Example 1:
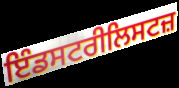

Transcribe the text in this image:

ਇੰਡਸਟਰੀਲਿਸਟਜ਼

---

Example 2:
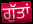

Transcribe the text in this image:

ਗੁੱਤਾਂ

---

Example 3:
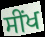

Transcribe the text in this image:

ਸੀਂਖ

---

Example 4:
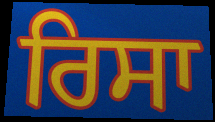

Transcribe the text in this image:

ਰਿਸਾ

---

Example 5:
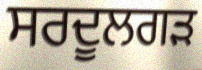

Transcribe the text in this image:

ਸਰਦੂਲਗੜ